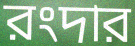
রংদার